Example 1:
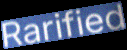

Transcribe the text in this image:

Rarified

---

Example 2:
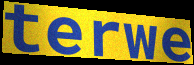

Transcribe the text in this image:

terwe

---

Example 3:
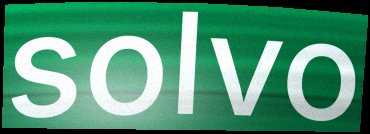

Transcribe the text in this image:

solvo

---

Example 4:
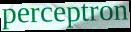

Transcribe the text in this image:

perceptron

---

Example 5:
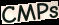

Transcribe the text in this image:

CMPs